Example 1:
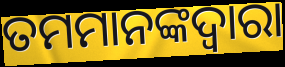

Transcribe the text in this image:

ତମମାନଙ୍କଦ୍ଵାରା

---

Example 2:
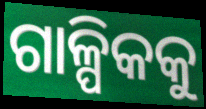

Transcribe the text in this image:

ଗାଳ୍ପିକକୁ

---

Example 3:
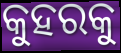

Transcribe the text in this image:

କୁହରକୁ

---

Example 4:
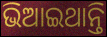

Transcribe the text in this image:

ଭିଆଇଥାନ୍ତି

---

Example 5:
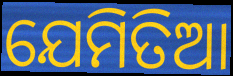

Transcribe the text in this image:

ଯେମିତିଆ